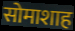
सोमाशाह